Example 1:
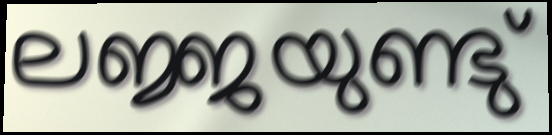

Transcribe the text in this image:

ലജ്ജയുണ്ടു്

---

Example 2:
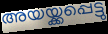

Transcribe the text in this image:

അയയ്ക്കപ്പെട്ടു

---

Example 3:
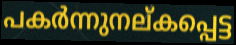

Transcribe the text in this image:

പകർന്നുനല്കപ്പെട്ട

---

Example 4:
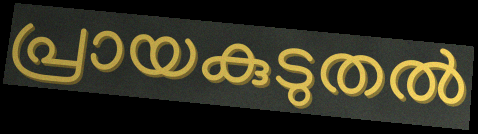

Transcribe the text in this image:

പ്രായകുടുതൽ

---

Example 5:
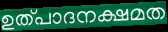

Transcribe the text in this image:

ഉത്പാദനക്ഷമത